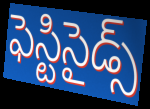
ఫెస్టిసైడ్స్